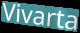
Vivarta